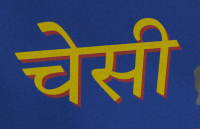
चेसी